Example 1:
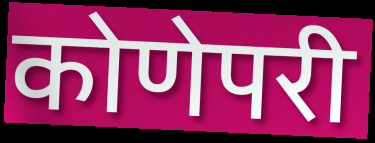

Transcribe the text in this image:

कोणेपरी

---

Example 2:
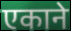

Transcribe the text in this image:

एकाने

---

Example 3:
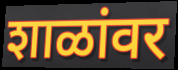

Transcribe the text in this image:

शाळांवर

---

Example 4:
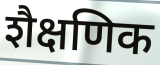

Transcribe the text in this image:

शैक्षणिक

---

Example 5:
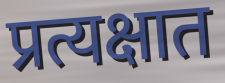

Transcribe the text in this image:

प्रत्यक्षात